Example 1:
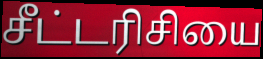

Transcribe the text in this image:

சீட்டரிசியை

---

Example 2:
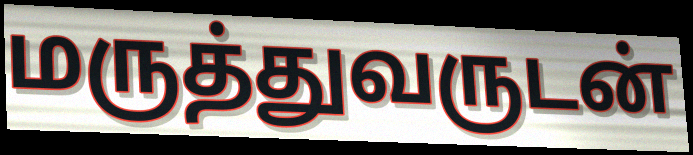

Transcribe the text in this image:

மருத்துவருடன்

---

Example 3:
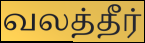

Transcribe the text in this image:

வலத்தீர்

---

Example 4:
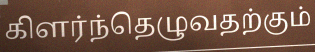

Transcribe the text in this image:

கிளர்ந்தெழுவதற்கும்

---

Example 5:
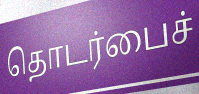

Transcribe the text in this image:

தொடர்பைச்